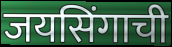
जयसिंगाची